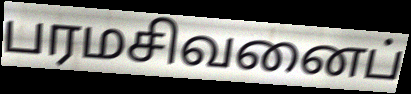
பரமசிவனைப்